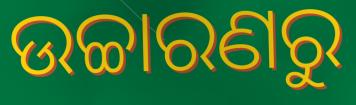
ଉଚ୍ଚାରଣରୁ